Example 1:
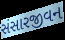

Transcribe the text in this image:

સંસારજીવન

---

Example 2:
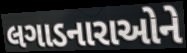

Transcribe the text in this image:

લગાડનારાઓને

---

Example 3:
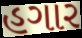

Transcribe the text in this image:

હગાર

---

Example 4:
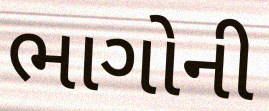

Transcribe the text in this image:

ભાગોની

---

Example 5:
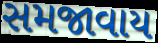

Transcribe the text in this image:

સમજાવાય